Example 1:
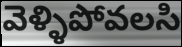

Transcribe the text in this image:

వెళ్ళిపోవలసి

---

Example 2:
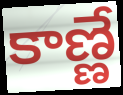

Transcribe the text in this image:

కాణ్ణే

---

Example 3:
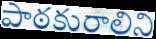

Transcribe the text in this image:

పాఠకురాలిని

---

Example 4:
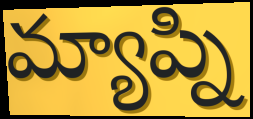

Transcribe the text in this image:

మ్యాప్ని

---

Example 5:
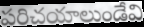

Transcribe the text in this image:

పరిచయాలుండేవి